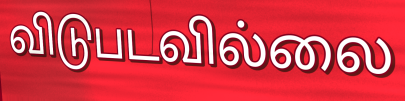
விடுபடவில்லை